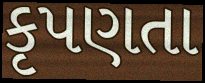
કૃપણતા